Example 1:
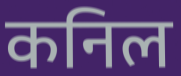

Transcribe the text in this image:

कनिल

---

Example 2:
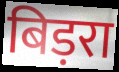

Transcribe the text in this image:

बिड़रा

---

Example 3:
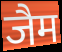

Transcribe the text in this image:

जैम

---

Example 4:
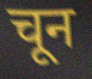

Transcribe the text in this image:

चून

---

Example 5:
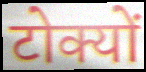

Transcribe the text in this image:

टोक्यों